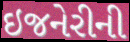
ઇજનેરીની